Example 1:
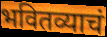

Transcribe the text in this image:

भवितव्याचं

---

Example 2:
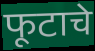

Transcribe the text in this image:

फूटाचे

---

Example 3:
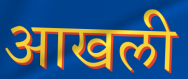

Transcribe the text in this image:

आखली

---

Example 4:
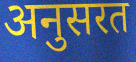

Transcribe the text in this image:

अनुसरत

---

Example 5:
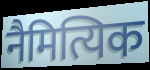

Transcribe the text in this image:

नैमित्यिक